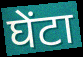
घेंटा